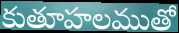
కుతూహలముతో